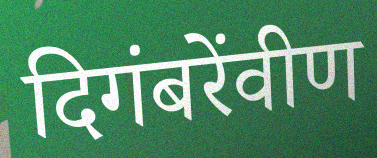
दिगंबरेंवीण